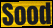
Sood